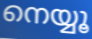
നെയ്യൂ